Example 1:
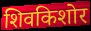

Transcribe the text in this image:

शिवकिशोर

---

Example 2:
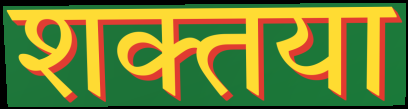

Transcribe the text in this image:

शक्तया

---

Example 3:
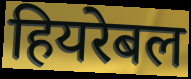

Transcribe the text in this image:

हियरेबल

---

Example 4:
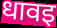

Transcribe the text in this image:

धावइ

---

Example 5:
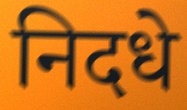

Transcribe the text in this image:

निदधे